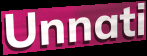
Unnati